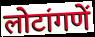
लोटांगणें